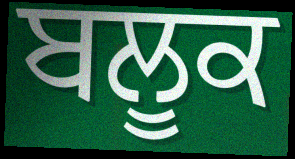
ਬਲੂਕ